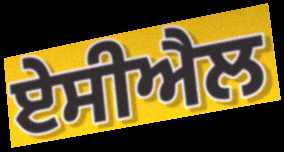
ਏਸੀਐਲ